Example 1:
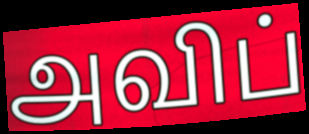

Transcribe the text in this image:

அவிப்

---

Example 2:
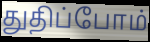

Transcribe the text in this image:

துதிப்போம்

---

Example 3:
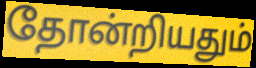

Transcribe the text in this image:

தோன்றியதும்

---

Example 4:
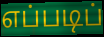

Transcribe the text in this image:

எப்படிப்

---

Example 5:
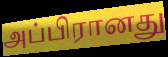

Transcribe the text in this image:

அப்பிரானது